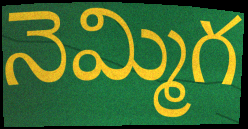
నెమ్మిగ